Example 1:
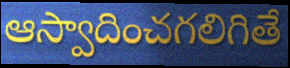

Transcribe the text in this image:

ఆస్వాదించగలిగితే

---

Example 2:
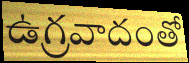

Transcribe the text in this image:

ఉగ్రవాదంతో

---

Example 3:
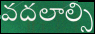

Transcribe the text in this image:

వదలాల్సి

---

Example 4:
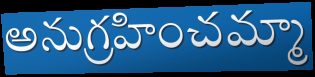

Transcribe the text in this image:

అనుగ్రహించమ్మా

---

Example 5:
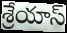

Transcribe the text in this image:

శ్రేయాస్